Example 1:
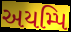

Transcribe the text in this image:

અયમ્પિ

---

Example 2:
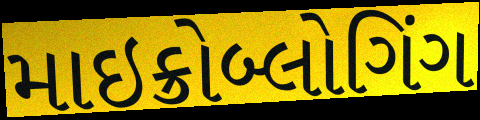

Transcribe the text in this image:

માઇક્રોબ્લોગિંગ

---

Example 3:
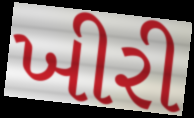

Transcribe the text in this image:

ખીરી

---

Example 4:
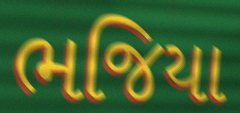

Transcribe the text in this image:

ભજિયા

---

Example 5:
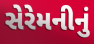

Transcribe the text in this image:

સેરેમનીનું